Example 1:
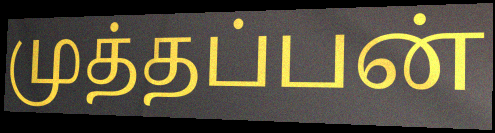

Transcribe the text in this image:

முத்தப்பன்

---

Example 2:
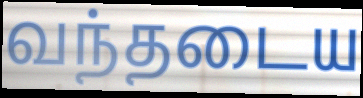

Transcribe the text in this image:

வந்தடைய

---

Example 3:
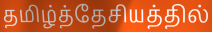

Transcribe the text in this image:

தமிழ்த்தேசியத்தில்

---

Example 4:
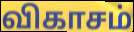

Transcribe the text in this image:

விகாசம்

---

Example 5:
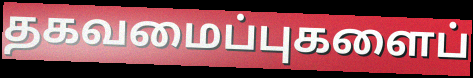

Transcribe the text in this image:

தகவமைப்புகளைப்